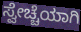
ಸ್ವೇಚ್ಚೆಯಾಗಿ